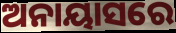
ଅନାୟାସରେ